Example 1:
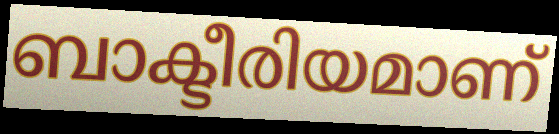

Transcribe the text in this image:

ബാക്ടീരിയമാണ്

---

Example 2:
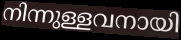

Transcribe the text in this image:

നിന്നുള്ളവനായി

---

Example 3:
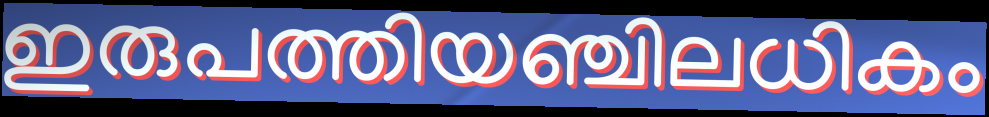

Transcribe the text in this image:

ഇരുപത്തിയഞ്ചിലധികം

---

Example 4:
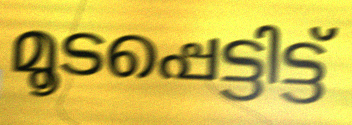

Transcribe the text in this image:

മൂടപ്പെട്ടിട്ട്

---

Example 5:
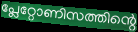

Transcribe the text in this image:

പ്ലേറ്റോണിസത്തിന്റെ